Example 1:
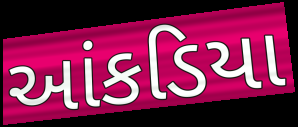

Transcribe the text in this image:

આંકડિયા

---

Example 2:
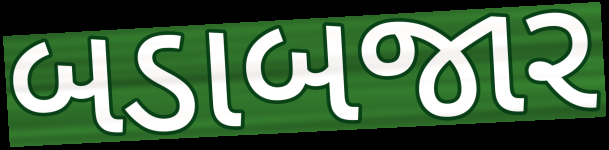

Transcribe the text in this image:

બડાબજાર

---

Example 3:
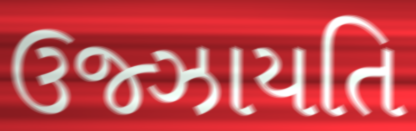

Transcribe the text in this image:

ઉજ્ઝાયતિ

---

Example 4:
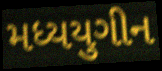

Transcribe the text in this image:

મધ્યયુગીન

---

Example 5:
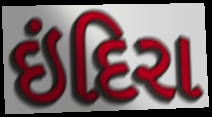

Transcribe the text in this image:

ઇંદિરા